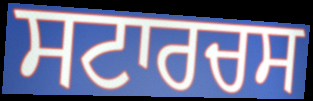
ਸਟਾਰਚਸ